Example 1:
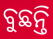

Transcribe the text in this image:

ବୁଛନ୍ତି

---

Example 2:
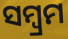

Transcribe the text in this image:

ସମ୍ବ୍ରମ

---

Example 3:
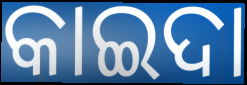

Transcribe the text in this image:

କାଇଦା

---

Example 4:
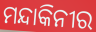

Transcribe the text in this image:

ମନ୍ଦାକିନୀର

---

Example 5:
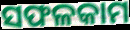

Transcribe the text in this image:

ସଫଳକାମ